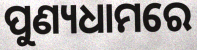
ପୁଣ୍ୟଧାମରେ